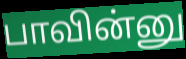
பாவின்னு